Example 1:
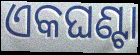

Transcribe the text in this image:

ଏକଘଣ୍ଟା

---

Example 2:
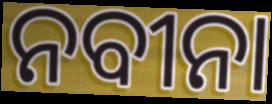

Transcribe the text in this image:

ନବୀନା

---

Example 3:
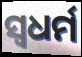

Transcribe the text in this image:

ସ୍ଵଧର୍ମ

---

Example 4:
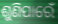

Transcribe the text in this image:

ଶୁଣିପାରେଁ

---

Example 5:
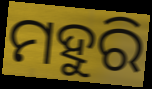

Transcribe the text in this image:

ମହୁରି